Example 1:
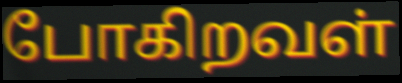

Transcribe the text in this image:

போகிறவள்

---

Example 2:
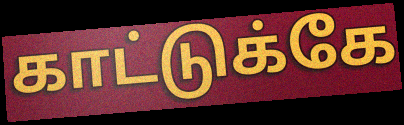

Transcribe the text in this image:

காட்டுக்கே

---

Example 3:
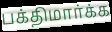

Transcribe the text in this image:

பக்திமார்க்க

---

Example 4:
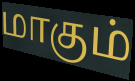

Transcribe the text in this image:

மாகும்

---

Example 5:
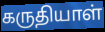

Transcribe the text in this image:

கருதியாள்